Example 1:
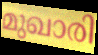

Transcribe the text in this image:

മുഖാരി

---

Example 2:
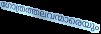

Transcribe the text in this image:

ഗോത്രത്തലവന്മാരെയും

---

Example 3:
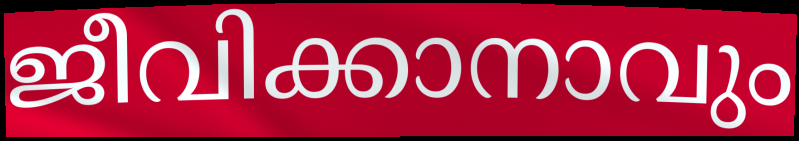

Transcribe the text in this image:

ജീവിക്കാനാവും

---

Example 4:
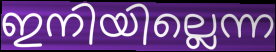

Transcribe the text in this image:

ഇനിയില്ലെന്ന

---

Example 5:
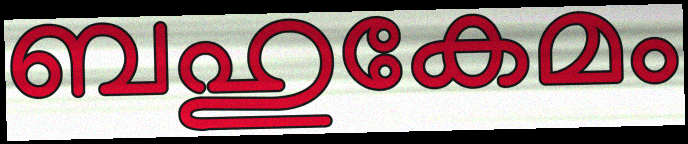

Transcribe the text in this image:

ബഹുകേമം